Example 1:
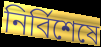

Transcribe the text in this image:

নির্বিশেষে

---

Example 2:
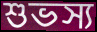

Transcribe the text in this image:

শুভস্য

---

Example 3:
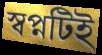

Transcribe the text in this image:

স্বপ্নটিই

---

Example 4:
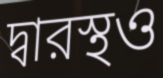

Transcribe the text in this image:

দ্বারস্থও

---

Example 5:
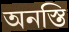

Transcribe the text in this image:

অনস্তি